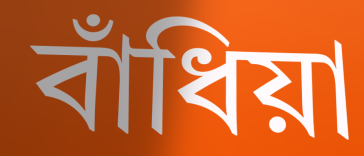
বাঁধিয়া